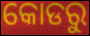
କୋଡରୁ